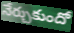
నేర్చుకుందో